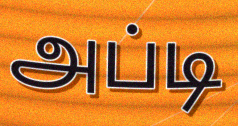
அப்டி